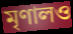
মৃণালও